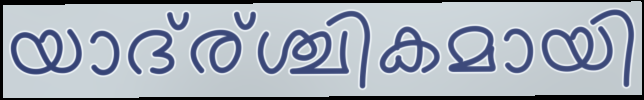
യാദ്ര്ശ്ചികമായി